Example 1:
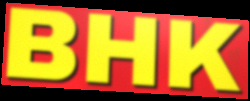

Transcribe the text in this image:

BHK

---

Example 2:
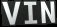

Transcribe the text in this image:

VIN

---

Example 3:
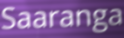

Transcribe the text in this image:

Saaranga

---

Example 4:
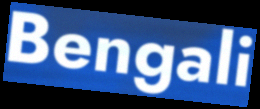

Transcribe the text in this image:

Bengali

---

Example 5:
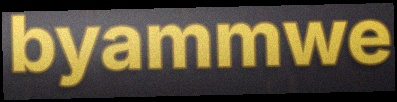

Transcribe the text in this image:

byammwe